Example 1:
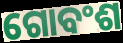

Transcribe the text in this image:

ଗୋବଂଶ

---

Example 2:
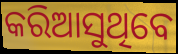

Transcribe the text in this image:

କରିଆସୁଥିବେ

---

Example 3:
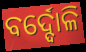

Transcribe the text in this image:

ବର୍ଦ୍ଦୋଳି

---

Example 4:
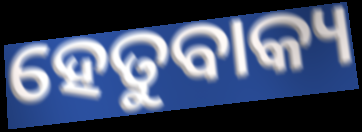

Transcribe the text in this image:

ହେତୁବାକ୍ୟ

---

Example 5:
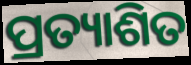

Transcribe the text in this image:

ପ୍ରତ୍ୟାଶିତ